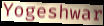
Yogeshwar